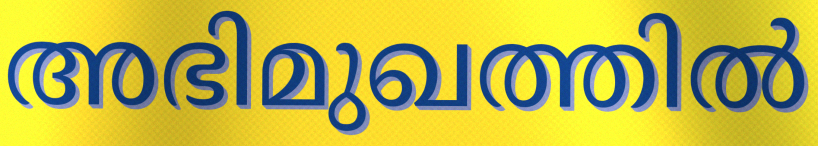
അഭിമുഖത്തിൽ